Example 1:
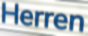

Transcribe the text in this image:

Herren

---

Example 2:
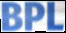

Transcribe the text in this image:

BPL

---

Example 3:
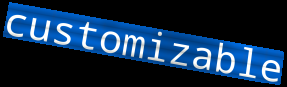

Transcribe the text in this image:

customizable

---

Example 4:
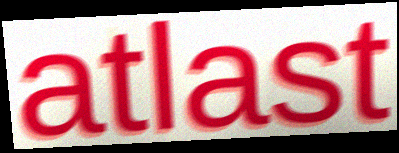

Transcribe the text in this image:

atlast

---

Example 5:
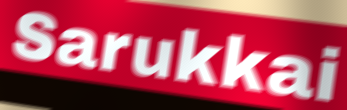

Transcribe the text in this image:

Sarukkai